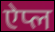
ऐप्ल